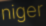
niger